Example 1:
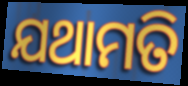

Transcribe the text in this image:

ଯଥାମତି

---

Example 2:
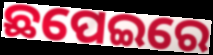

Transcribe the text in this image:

ଛପେଇରେ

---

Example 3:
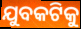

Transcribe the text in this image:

ଯୁବକଟିକୁ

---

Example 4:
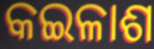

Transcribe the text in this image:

କଇଳାଶ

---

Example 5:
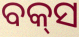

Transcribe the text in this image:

ବକ୍‍ସ